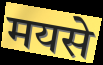
मयसे